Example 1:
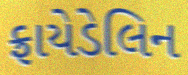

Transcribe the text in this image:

ફ્રાયેડેલિન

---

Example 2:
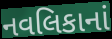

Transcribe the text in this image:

નવલિકાનાં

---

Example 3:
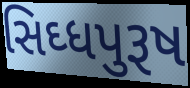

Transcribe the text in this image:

સિઘ્ધપુરૂષ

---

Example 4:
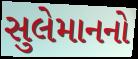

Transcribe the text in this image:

સુલેમાનનો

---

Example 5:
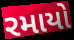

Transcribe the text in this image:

રમાયો